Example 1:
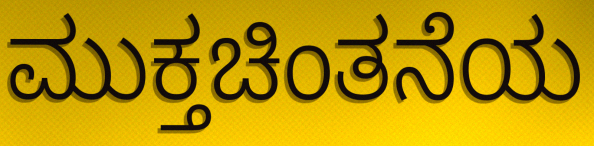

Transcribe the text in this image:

ಮುಕ್ತಚಿಂತನೆಯ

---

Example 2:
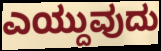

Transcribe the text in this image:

ಎಯ್ದುವುದು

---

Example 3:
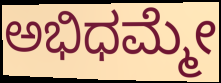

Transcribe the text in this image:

ಅಭಿಧಮ್ಮೇ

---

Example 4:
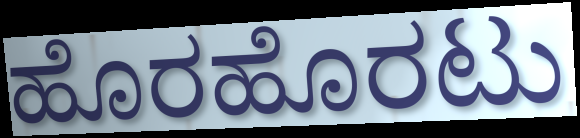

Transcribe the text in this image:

ಹೊರಹೊರಟು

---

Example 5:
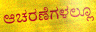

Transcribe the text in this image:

ಆಚರಣೆಗಳಲ್ಲೂ